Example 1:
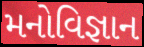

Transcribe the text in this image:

મનોવિજ્ઞાન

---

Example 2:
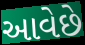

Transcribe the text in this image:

આવેછે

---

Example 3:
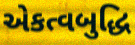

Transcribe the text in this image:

એકત્વબુદ્ધિ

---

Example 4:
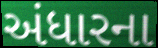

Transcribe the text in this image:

અંધારના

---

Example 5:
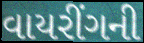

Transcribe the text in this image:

વાયરીંગની